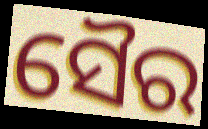
ସୈର